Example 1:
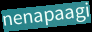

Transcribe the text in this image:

nenapaagi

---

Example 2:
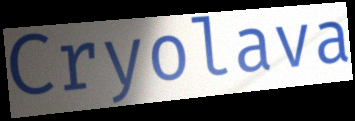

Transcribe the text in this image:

Cryolava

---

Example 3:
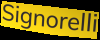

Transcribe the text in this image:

Signorelli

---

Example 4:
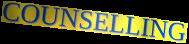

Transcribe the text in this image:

COUNSELLING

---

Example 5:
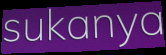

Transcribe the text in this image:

sukanya